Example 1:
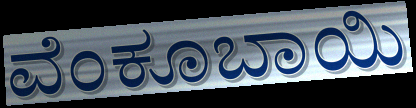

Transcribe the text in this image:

ವೆಂಕೂಬಾಯಿ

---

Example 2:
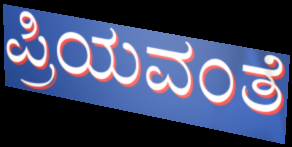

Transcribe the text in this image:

ಪ್ರಿಯವಂತೆ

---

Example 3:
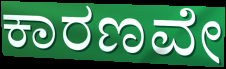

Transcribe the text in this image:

ಕಾರಣವೇ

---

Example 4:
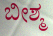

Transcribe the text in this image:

ಬೀಶ್ಮ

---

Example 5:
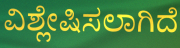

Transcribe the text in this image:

ವಿಶ್ಲೇಷಿಸಲಾಗಿದೆ